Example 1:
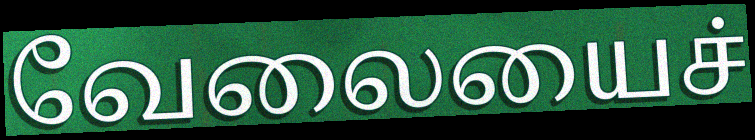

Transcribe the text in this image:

வேலையைச்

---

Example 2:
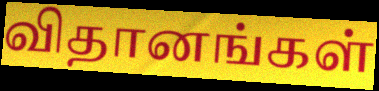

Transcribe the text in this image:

விதானங்கள்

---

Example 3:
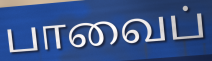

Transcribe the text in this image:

பாவைப்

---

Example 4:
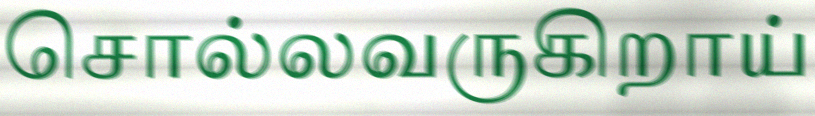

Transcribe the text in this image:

சொல்லவருகிறாய்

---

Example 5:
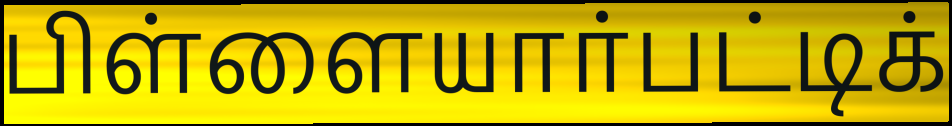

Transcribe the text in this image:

பிள்ளையார்பட்டிக்